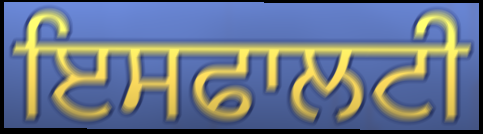
ਇਸਫਾਲਟੀ